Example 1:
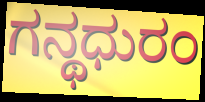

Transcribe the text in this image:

ಗನ್ಥಧುರಂ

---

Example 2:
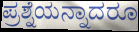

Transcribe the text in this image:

ಪ್ರಶ್ನೆಯನ್ನಾದರೂ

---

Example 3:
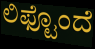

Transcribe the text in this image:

ಲಿಫ್ಟೊಂದೆ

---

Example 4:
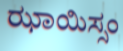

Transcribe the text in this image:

ಝಾಯಿಸ್ಸಂ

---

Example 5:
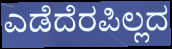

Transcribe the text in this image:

ಎಡೆದೆರಪಿಲ್ಲದ